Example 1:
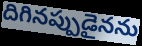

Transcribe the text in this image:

దిగినప్పుడైనను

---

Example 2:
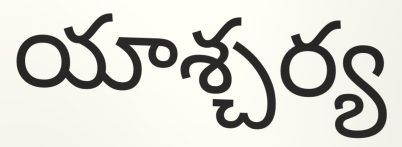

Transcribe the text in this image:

యాశ్చర్య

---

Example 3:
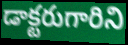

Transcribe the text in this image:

డాక్టరుగారిని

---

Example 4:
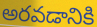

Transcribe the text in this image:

అరవడానికి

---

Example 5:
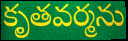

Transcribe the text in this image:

కృతవర్మను